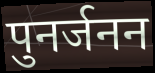
पुनर्जनन